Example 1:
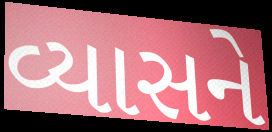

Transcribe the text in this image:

વ્યાસને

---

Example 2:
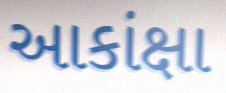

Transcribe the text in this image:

આકાંક્ષા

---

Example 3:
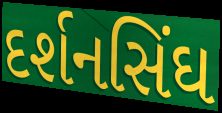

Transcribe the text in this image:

દર્શનસિંઘ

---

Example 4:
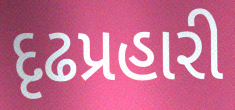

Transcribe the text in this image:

દૃઢપ્રહારી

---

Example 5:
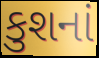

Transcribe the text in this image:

કુશનાં